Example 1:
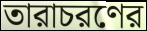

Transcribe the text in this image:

তারাচরণের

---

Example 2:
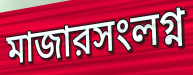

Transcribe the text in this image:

মাজারসংলগ্ন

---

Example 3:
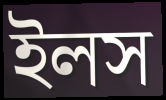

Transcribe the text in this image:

ইলস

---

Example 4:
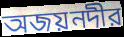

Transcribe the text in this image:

অজয়নদীর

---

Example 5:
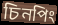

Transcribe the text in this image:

চিনপিং